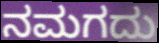
ನಮಗದು